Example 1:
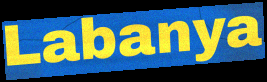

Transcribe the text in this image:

Labanya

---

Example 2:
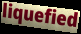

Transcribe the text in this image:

liquefied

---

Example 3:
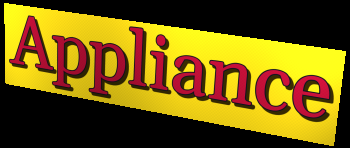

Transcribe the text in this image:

Appliance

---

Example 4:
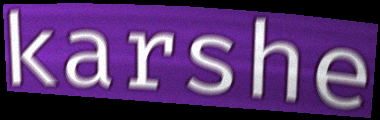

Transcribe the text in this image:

karshe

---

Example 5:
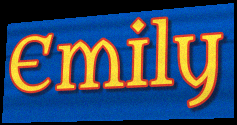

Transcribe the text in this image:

Emily